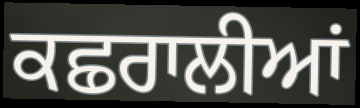
ਕਛਰਾਲੀਆਂ